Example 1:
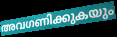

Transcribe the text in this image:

അവഗണിക്കുകയും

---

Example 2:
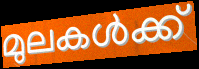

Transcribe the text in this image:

മുലകൾക്ക്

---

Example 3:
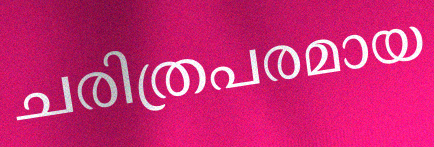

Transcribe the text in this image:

ചരിത്രപരമായ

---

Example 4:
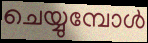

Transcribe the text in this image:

ചെയ്യുമ്പോൾ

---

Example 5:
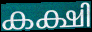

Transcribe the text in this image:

കക്ഷി